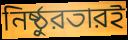
নিষ্ঠুরতারই